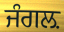
ਜੰਗਲ਼